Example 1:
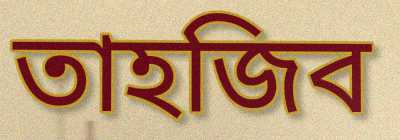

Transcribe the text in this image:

তাহজিব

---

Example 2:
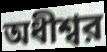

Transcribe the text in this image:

অধীশ্বর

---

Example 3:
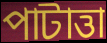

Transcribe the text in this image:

পাটাত্তা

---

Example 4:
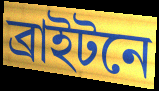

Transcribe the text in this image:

ব্রাইটনে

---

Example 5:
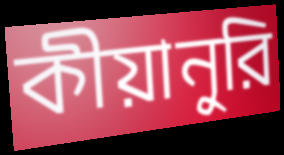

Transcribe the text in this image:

কীয়ানুরি